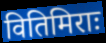
वितिमिराः